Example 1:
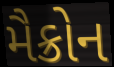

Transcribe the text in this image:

મૈક્રોન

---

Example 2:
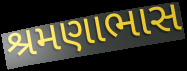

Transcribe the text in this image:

શ્રમણાભાસ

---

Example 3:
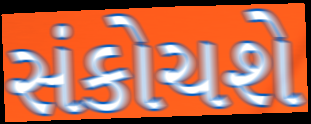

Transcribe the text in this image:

સંકોચશે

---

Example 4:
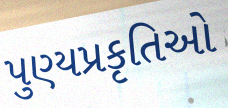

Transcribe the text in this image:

પુણ્યપ્રકૃતિઓ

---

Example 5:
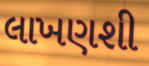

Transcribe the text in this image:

લાખણશી